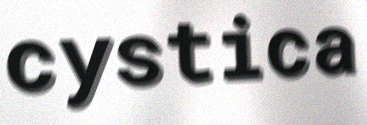
cystica